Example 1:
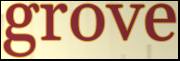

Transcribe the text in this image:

grove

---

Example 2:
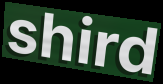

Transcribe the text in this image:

shird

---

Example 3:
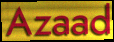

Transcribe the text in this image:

Azaad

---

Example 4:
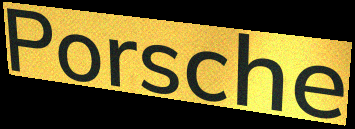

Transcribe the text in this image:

Porsche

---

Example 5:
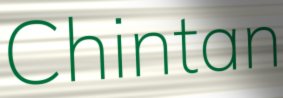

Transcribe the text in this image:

Chintan